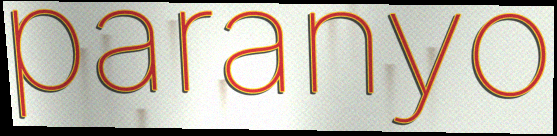
paranyo